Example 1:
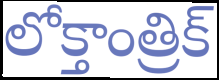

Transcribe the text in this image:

లోక్తాంత్రిక్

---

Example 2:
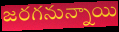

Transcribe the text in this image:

జరగనున్నాయి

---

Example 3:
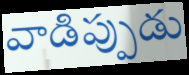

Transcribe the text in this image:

వాడిప్పుడు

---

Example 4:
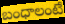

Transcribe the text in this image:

బంధాలంటే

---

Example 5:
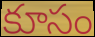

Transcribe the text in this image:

కూసం